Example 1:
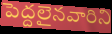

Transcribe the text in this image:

పెద్దలైనవారిని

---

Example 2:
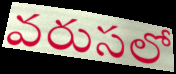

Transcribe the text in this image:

వరుసలో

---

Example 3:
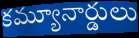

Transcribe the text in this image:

కమ్యూనార్డులు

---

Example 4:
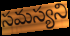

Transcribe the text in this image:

సమస్యని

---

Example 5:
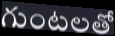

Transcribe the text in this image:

గుంటలతో